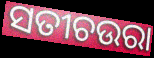
ସତୀଚଉରା